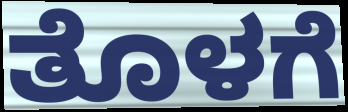
ತೊಳಗೆ